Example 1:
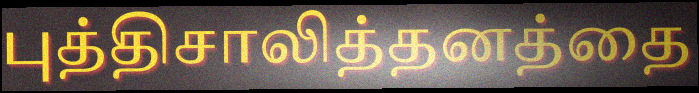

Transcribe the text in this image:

புத்திசாலித்தனத்தை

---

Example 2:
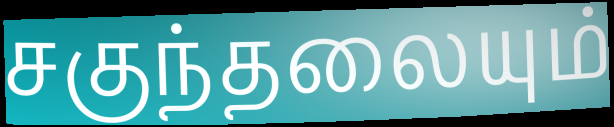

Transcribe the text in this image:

சகுந்தலையும்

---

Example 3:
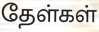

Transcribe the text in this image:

தேள்கள்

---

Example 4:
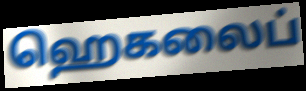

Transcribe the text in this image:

ஹெகலைப்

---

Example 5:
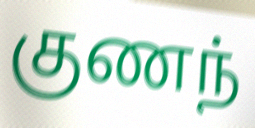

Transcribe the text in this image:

குணந்